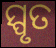
ସ୍ପୃତ